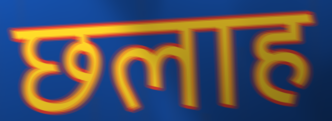
छलाह